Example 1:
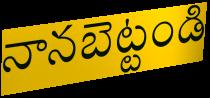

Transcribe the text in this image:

నానబెట్టండి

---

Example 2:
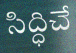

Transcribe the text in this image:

సిద్ధిచే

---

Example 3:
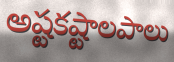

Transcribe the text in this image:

అష్టకష్టాలపాలు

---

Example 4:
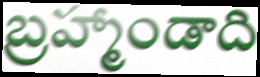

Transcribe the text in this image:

బ్రహ్మాండాది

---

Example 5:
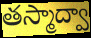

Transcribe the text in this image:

తస్మాద్వా